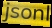
jsonl